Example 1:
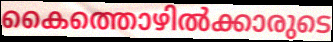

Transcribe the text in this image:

കൈത്തൊഴിൽക്കാരുടെ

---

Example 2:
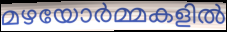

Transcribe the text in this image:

മഴയോർമ്മകളിൽ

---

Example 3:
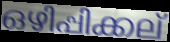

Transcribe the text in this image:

ഒഴിപ്പിക്കല്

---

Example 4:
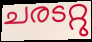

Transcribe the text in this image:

ചരടറ്റു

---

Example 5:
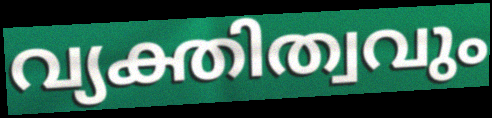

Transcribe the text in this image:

വ്യക്തിത്വവും